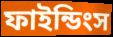
ফাইন্ডিংস